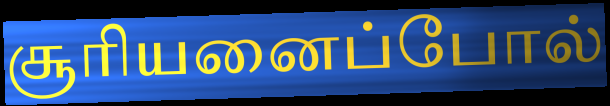
சூரியனைப்போல்